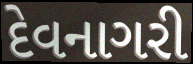
દેવનાગરી